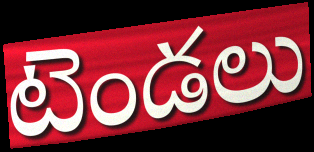
టెండలు